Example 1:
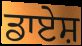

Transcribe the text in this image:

ਡਾਏਸ਼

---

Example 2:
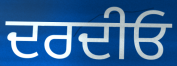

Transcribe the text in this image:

ਦਰਦੀਓ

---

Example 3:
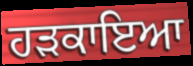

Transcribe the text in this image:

ਹੜਕਾਇਆ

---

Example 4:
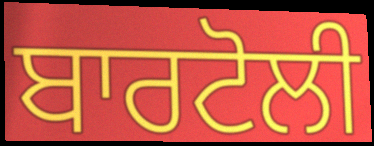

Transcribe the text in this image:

ਬਾਰਟੋਲੀ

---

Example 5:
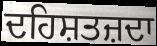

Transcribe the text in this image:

ਦਹਿਸ਼ਤਜ਼ਦਾ